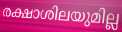
രക്ഷാശിലയുമില്ല